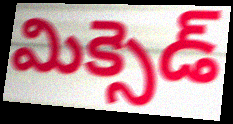
మిక్సెడ్